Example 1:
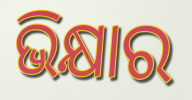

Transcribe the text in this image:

ଭିକ୍ଷାର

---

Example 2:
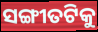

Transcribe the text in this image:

ସଙ୍ଗୀତଟିକୁ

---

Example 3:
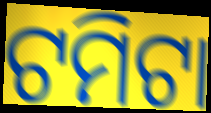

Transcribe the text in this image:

ଟମିଟା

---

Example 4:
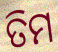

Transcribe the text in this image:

ତିମ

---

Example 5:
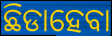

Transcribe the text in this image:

ଛିଡାହେବା